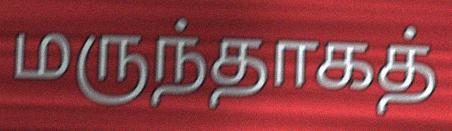
மருந்தாகத்